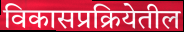
विकासप्रक्रियेतील